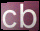
cb